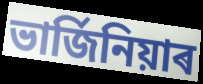
ভাৰ্জিনিয়াৰ